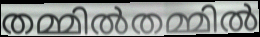
തമ്മിൽതമ്മിൽ